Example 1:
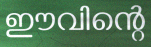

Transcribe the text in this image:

ഈവിന്റെ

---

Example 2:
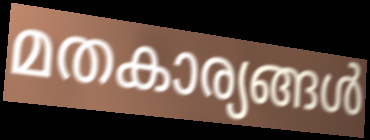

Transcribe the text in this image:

മതകാര്യങ്ങൾ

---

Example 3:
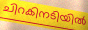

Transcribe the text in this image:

ചിറകിനടിയിൽ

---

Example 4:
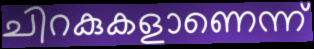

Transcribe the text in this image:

ചിറകുകളാണെന്ന്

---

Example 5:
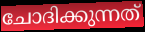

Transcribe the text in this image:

ചോദിക്കുന്നത്